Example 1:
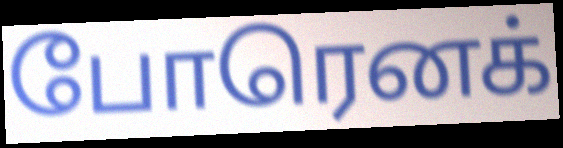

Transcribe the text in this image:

போரெனக்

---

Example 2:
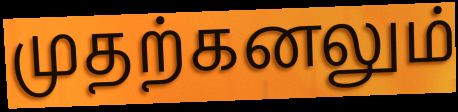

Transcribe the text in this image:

முதற்கனலும்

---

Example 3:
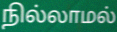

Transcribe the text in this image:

நில்லாமல்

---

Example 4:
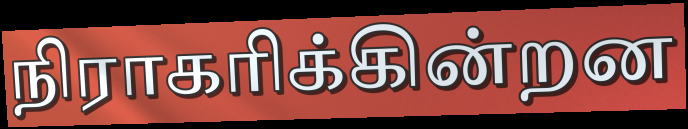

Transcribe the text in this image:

நிராகரிக்கின்றன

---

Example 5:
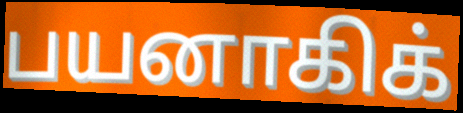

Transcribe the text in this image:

பயனாகிக்